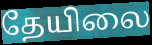
தேயிலை